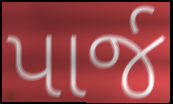
પાર્જ